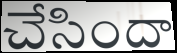
చేసిందా